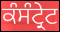
ਕੰਸੰਟ੍ਰੇਟ